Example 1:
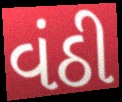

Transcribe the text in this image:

વંઠી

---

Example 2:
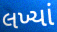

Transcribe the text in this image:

લખ્યાં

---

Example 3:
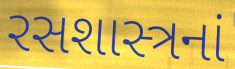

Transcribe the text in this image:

રસશાસ્ત્રનાં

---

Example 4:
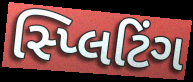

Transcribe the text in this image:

સ્પ્લિટિંગ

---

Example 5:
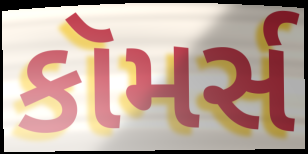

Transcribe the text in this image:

કૉમર્સ